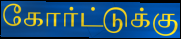
கோர்ட்டுக்கு